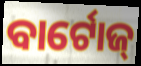
ବାର୍ଟୋଜ୍